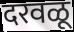
दरवळू